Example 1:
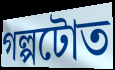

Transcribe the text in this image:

গল্পটোত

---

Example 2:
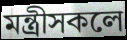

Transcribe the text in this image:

মন্ত্ৰীসকলে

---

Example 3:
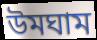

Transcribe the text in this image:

উমঘাম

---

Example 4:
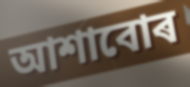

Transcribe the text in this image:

আশাবোৰ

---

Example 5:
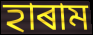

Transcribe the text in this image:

হাৰাম